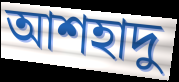
আশহাদু